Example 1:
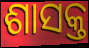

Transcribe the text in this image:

ଶାସକ୍ତ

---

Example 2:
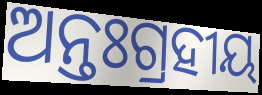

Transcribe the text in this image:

ଅନ୍ତଃଗ୍ରହୀୟ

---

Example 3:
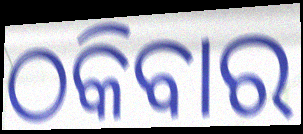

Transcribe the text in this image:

ଠକିବାର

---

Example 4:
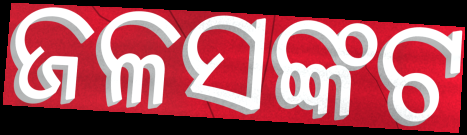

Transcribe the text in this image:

ଜଳସଙ୍କଟ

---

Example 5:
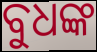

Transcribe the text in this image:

ବୁଧଙ୍କ